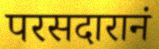
परसदारानं